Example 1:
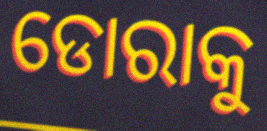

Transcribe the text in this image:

ଡୋରାକୁ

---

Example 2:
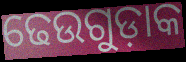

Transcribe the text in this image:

ଢେଉଗୁଡ଼ାକ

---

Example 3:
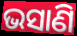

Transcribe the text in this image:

ଭସାଣି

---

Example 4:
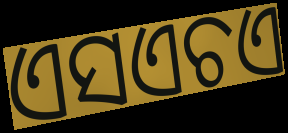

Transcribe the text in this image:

ଏସଏଚଏ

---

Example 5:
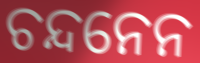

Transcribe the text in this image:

ଚନ୍ଦନେନ